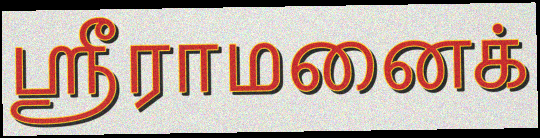
ஸ்ரீராமனைக்